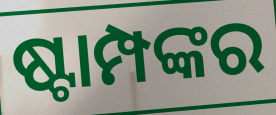
ଷ୍ଟାମ୍ପଙ୍କର